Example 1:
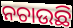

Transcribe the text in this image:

ନଚାଉଛି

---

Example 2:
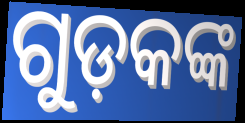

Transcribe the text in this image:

ଗୁଡ଼କଙ୍କ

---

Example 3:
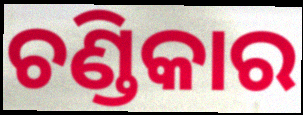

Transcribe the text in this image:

ଚଣ୍ଡିକାର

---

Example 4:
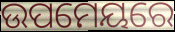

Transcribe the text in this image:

ଉପମେୟରେ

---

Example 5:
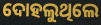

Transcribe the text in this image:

ଦୋହଲୁଥିଲେ